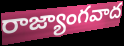
రాజ్యాంగవాద